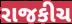
રાજકીચ